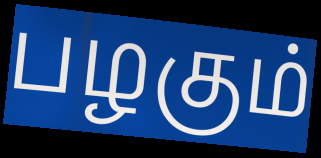
பழகும்